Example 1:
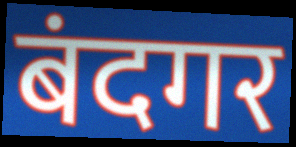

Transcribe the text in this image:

बंदगर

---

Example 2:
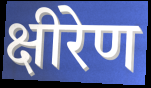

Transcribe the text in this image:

क्षीरेण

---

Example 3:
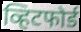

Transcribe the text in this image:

व्हिटफोर्ड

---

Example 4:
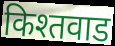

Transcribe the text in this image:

किश्तवाड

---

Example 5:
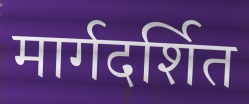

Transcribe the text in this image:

मार्गदर्शित